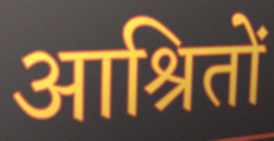
आश्रितों